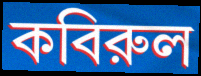
কবিরুল